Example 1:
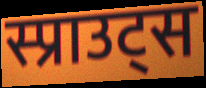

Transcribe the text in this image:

स्प्राउट्स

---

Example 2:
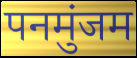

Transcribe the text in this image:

पनमुंजम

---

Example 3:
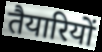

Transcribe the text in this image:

तैयारियों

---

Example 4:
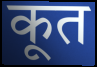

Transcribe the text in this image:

कूत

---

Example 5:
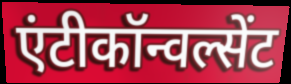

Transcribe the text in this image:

एंटीकॉन्वल्सेंट